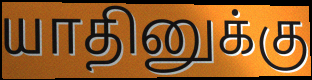
யாதினுக்கு